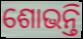
ଶୋଭନ୍ତି